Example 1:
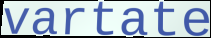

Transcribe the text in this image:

vartate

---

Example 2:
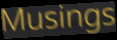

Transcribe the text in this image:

Musings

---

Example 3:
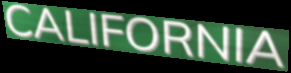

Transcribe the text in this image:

CALIFORNIA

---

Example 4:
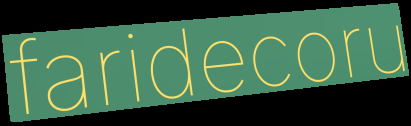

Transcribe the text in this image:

faridecoru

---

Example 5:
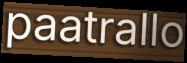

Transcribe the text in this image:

paatrallo